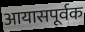
आयासपूर्वक